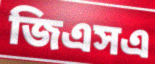
জিএসএ